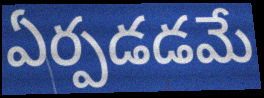
ఏర్పడడమే